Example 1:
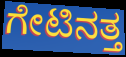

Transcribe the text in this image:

ಗೇಟಿನತ್ತ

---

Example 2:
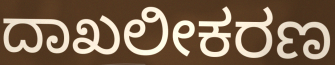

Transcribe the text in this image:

ದಾಖಲೀಕರಣ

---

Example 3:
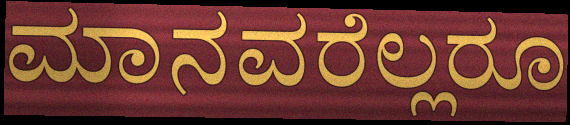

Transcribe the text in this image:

ಮಾನವರೆಲ್ಲರೂ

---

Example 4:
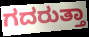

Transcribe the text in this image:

ಗದರುತ್ತಾ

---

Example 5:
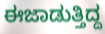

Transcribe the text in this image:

ಈಜಾಡುತ್ತಿದ್ದ